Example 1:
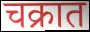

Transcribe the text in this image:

चक्रात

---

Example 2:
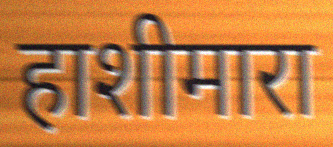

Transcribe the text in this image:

हाशीमारा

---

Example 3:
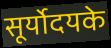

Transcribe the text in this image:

सूर्योदयके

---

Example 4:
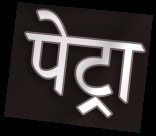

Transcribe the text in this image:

पेट्रा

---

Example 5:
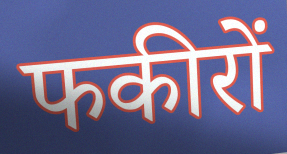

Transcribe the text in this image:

फकीरों